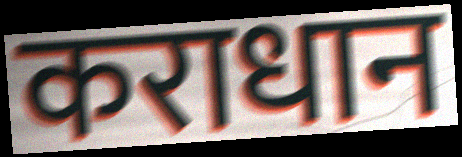
कराधान